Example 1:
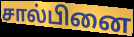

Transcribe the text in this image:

சால்பினை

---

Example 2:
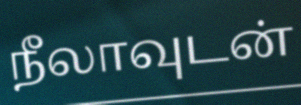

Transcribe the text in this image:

நீலாவுடன்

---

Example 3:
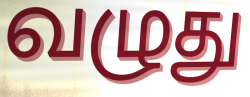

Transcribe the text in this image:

வழுது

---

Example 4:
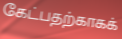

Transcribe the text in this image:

கேட்பதற்காகக்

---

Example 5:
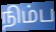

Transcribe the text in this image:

நிம்ப